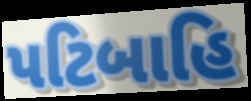
પટિબાહિ